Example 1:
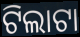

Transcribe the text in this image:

ଟିଲାଟା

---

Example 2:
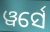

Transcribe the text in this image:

ୱର୍ସେ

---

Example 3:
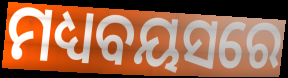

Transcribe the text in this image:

ମଧ୍ୟବୟସରେ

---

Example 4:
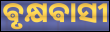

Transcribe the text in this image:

ଵୃକ୍ଷଵାସୀ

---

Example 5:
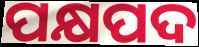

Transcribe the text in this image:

ପକ୍ଷପଦ